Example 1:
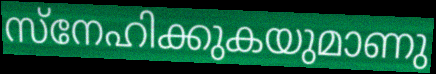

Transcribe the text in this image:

സ്നേഹിക്കുകയുമാണു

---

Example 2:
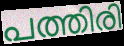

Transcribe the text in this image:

പത്തിരി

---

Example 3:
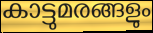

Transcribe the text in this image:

കാട്ടുമരങ്ങളും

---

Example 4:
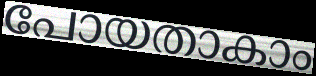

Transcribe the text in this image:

പോയതാകാം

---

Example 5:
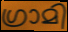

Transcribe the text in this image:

ഗ്രാമി